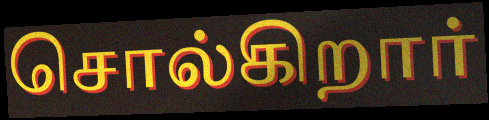
சொல்கிறார்